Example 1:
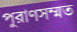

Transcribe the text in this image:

পুরাণসম্মত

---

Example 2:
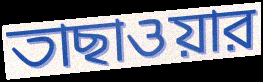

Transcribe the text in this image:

তাছাওয়ার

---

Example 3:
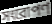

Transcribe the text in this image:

সংরোপণ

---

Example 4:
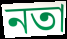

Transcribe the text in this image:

নতা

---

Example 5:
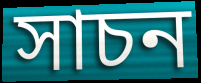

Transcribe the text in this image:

সাচন